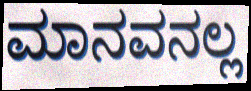
ಮಾನವನಲ್ಲ